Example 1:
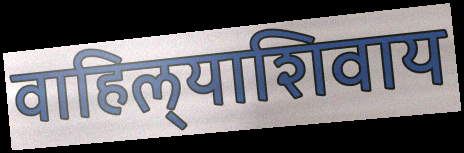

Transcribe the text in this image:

वाहिल्याशिवाय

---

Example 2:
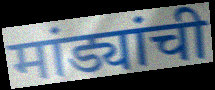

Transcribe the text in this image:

मांड्यांची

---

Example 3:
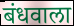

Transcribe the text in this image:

बंधवाला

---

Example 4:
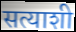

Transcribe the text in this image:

सत्याशी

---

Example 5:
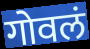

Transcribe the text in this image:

गोवलं